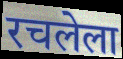
रचलेला